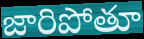
జారిపోతూ